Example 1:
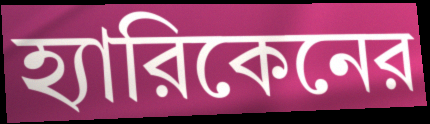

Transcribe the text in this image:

হ্যারিকেনের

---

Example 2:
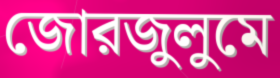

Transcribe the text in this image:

জোরজুলুমে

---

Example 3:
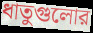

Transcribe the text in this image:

ধাতুগুলোর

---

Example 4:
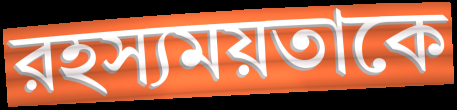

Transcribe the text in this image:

রহস্যময়তাকে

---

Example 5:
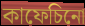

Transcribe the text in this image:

কাফেচিনো